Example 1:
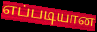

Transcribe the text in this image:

எப்படியான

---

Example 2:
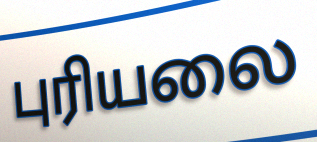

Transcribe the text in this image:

புரியலை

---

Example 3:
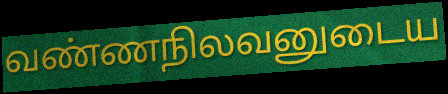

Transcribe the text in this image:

வண்ணநிலவனுடைய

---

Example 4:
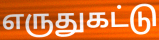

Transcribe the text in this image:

எருதுகட்டு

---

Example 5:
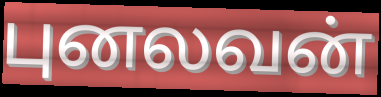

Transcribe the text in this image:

புனலவன்